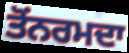
ਤੋਂਨਰਮਦਾ